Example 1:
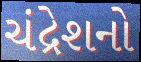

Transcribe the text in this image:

ચંદ્રેશનો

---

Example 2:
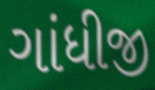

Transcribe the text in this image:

ગાંધીજી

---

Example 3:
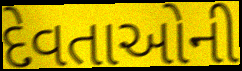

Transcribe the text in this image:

દેવતાઓની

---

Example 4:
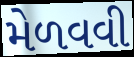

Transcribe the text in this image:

મેળવવી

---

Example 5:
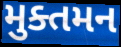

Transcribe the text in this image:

મુક્તમન